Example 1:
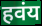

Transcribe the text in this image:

हवंय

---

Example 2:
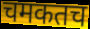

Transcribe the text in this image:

चमकतच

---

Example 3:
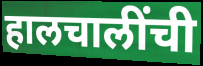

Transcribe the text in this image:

हालचालींची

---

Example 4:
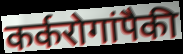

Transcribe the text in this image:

कर्करोगांपैकी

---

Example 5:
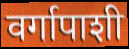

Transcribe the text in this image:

वर्गापाशी